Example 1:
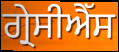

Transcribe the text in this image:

ਗ੍ਰੇਸੀਐੱਸ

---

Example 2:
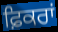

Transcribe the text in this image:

ਫ਼ਿਕਰਾਂ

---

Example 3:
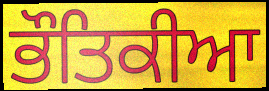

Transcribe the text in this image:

ਭੌਤਿਕੀਆ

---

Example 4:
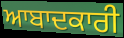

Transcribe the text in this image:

ਆਬਾਦਕਾਰੀ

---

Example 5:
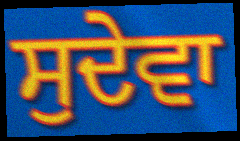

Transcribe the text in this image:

ਸੁਦੇਵਾ